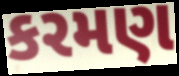
કરમણ